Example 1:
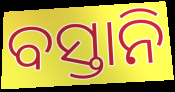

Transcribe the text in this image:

ବସ୍ତାନି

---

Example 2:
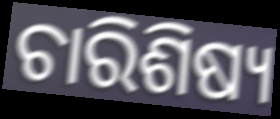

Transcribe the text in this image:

ଚାରିଶିଷ୍ୟ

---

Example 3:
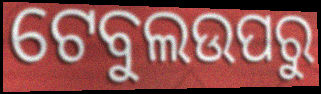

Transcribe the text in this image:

ଟେବୁଲଉପରୁ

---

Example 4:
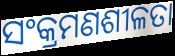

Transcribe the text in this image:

ସଂକ୍ରମଣଶୀଳତା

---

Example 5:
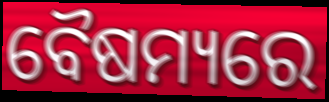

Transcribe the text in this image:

ବୈଷମ୍ୟରେ